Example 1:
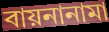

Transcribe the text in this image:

বায়নানামা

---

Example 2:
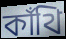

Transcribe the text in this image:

কাঁথি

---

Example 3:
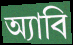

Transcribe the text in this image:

অ্যাবি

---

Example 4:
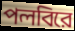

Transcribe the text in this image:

পলবিরে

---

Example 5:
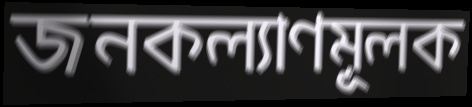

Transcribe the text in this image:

জনকল্যাণমূলক